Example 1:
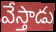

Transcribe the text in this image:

వేస్తాడు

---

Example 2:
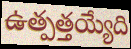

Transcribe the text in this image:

ఉత్పత్తయ్యేది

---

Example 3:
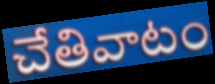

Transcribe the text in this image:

చేతివాటం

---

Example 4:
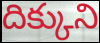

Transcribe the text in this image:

దిక్కుని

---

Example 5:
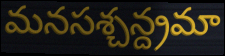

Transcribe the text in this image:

మనసశ్చన్ద్రమా